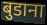
बुडाना